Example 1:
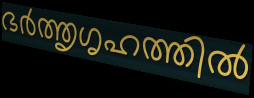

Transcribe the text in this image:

ഭർത്തൃഗൃഹത്തിൽ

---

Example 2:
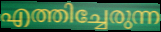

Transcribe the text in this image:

എത്തിച്ചേരുന്ന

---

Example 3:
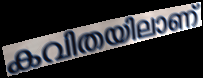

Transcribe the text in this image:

കവിതയിലാണ്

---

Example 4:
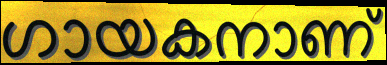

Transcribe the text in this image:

ഗായകനാണ്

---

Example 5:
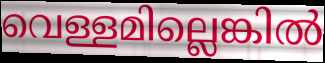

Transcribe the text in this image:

വെള്ളമില്ലെങ്കിൽ